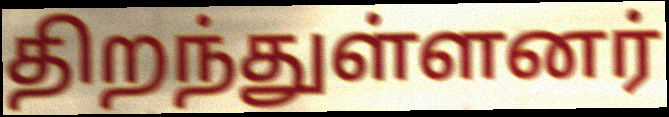
திறந்துள்ளனர்